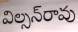
విల్సన్‌రావు